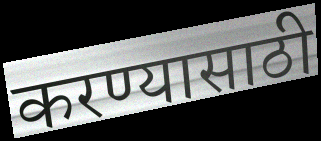
करण्यासाठी